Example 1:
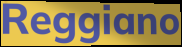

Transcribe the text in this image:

Reggiano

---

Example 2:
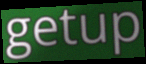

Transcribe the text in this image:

getup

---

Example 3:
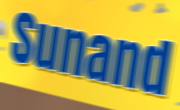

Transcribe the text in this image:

Sunand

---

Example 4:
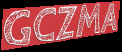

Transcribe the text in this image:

GCZMA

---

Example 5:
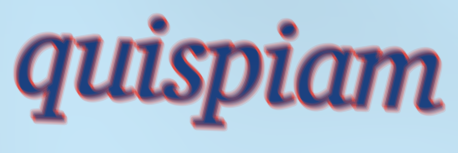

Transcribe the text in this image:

quispiam